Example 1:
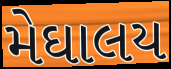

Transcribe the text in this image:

મેઘાલય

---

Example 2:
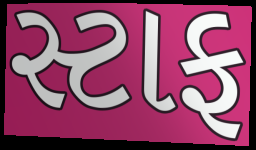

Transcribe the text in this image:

સ્ટાફ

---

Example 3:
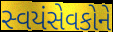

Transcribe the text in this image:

સ્વયંસેવકોને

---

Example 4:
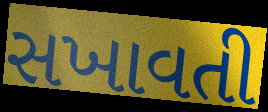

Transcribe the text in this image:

સખાવતી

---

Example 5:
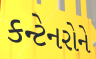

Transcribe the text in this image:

કન્ટેનરોને